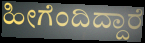
ಹೀಗೆಂದಿದ್ದಾರೆ